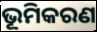
ଭୂମିକରଣ